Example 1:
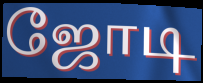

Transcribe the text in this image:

ஜோடி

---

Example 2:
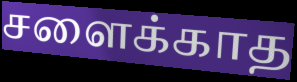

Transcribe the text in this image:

சளைக்காத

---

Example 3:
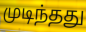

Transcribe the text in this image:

முடிந்தது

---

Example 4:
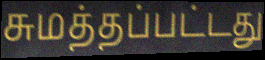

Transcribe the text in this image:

சுமத்தப்பட்டது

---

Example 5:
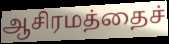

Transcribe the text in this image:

ஆசிரமத்தைச்